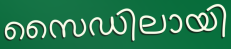
സൈഡിലായി